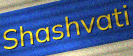
Shashvati